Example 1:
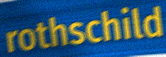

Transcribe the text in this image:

rothschild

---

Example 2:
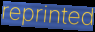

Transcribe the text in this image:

reprinted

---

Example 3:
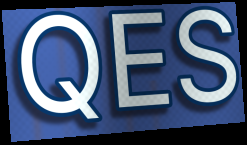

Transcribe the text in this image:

QES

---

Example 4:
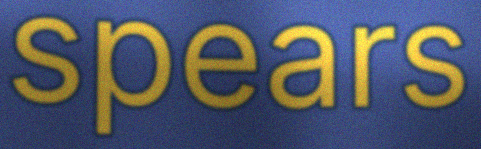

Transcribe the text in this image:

spears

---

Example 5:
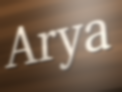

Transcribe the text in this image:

Arya